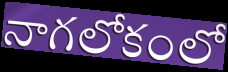
నాగలోకంలో